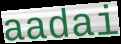
aadai